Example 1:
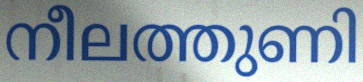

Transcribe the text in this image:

നീലത്തുണി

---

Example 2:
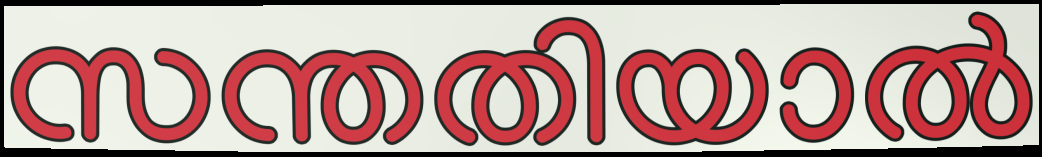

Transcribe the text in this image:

സന്തതിയാൽ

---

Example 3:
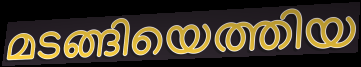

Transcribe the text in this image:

മടങ്ങിയെത്തിയ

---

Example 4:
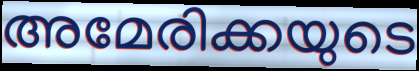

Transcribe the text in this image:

അമേരിക്കയുടെ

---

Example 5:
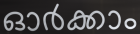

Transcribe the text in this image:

ഓർക്കാം